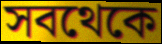
সবথেকে